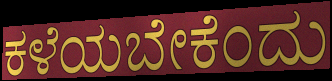
ಕಳೆಯಬೇಕೆಂದು